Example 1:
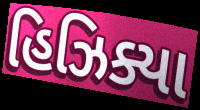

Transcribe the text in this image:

હિઝિક્યા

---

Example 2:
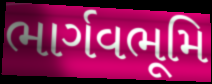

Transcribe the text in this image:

ભાર્ગવભૂમિ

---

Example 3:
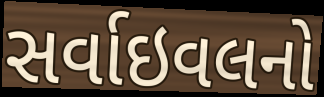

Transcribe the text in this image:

સર્વાઇવલનો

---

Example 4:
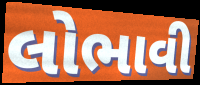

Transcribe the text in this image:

લોભાવી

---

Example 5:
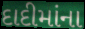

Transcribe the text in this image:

દાદીમાંના